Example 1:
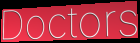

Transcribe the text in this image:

Doctors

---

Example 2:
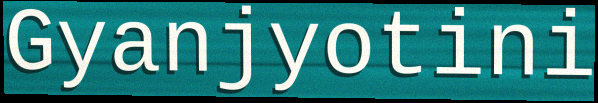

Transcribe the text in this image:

Gyanjyotini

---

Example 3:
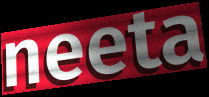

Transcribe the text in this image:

neeta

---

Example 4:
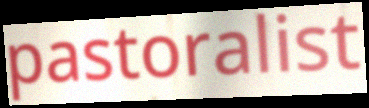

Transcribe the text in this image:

pastoralist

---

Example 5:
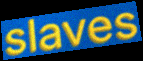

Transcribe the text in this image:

slaves